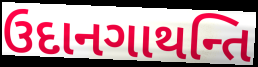
ઉદાનગાથન્તિ